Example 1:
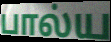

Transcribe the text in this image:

பால்ய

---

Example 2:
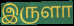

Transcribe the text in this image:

இருளா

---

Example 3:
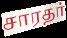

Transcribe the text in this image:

சாரதர்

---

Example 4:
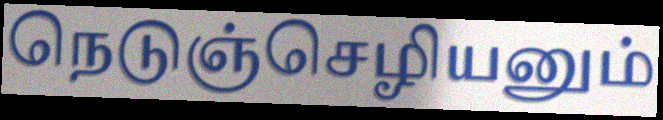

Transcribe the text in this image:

நெடுஞ்செழியனும்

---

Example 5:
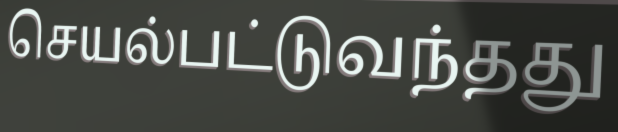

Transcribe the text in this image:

செயல்பட்டுவந்தது